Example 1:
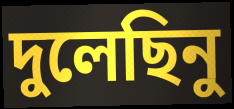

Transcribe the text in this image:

দুলেছিনু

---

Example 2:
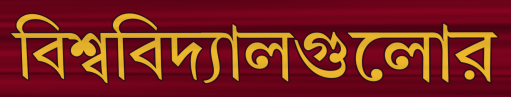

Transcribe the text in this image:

বিশ্ববিদ্যালগুলোর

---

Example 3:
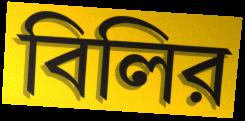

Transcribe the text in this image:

বিলির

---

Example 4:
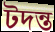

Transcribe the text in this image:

টদন্ত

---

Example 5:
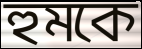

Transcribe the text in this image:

হুমকে